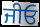
ਜੀਓ